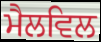
ਮੈਲਵਿਲ